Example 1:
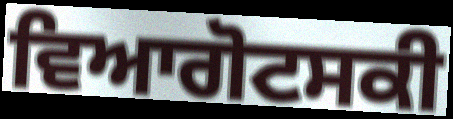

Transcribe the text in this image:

ਵਿਆਗੋਟਸਕੀ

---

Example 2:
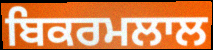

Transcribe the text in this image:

ਬਿਕਰਮਲਾਲ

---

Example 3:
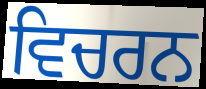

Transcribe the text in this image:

ਵਿਚਰਨ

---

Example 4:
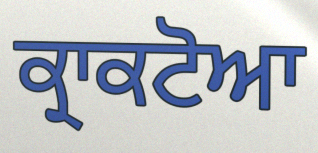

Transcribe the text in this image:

ਕ੍ਰਾਕਟੋਆ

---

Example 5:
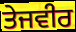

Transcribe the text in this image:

ਤੇਜਵੀਰ